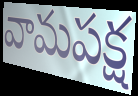
వామపక్ష